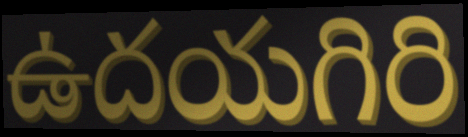
ఉదయగిరి